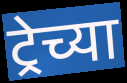
ट्रेच्या